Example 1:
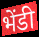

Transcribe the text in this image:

भेंडी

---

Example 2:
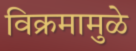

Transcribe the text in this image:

विक्रमामुळे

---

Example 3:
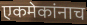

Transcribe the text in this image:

एकमेकांनाच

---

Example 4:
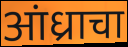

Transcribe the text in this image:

आंध्राचा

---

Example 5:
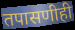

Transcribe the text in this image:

तपासणीही